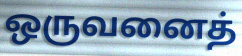
ஒருவனைத்